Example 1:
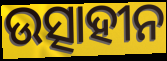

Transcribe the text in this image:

ଉତ୍ସାହୀନ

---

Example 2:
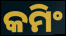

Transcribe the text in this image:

କମିଂ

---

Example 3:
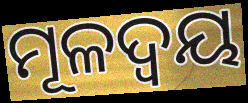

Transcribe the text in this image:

ମୂଳଦ୍ଵୟ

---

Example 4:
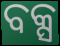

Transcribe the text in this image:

ବକ୍ସ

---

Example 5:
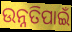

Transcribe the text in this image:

ଉନ୍ନତିପାଇଁ